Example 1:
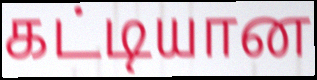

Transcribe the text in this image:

கட்டியான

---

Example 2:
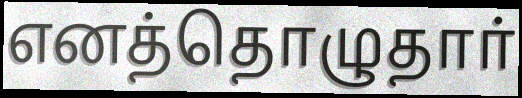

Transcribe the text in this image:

எனத்தொழுதார்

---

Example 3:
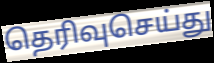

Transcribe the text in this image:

தெரிவுசெய்து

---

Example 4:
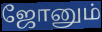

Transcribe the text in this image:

ஜோனும்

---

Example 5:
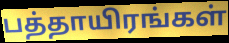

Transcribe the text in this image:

பத்தாயிரங்கள்